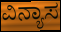
ವಿನ್ಯಾಸ